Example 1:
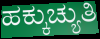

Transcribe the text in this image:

ಹಕ್ಕುಚ್ಯುತಿ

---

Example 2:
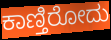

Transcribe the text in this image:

ಕಾಣ್ತಿರೋದು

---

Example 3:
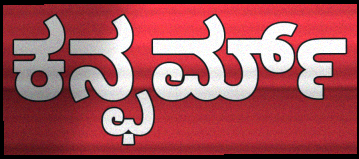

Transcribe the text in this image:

ಕನ್ಫರ್ಮ್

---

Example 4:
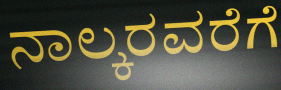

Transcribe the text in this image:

ನಾಲ್ಕರವರೆಗೆ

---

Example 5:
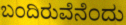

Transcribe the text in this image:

ಬಂದಿರುವೆನೆಂದು